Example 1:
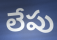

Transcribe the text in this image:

లేపు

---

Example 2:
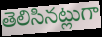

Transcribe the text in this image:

తెలిసినట్లుగా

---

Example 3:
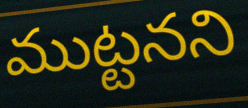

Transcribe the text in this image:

ముట్టనని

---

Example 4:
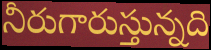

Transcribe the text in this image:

నీరుగారుస్తున్నది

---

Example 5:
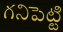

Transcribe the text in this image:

గనిపెట్టి